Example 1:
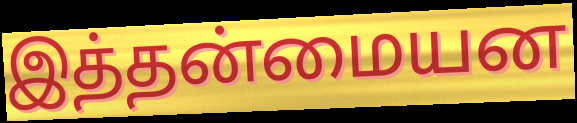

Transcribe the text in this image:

இத்தன்மையன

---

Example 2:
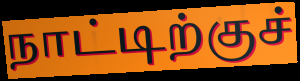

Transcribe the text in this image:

நாட்டிற்குச்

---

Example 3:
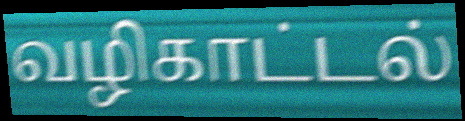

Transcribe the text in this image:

வழிகாட்டல்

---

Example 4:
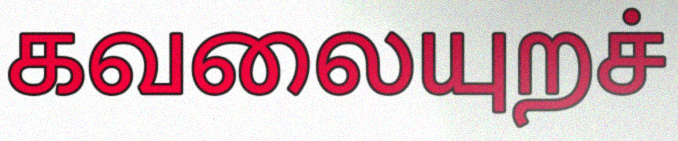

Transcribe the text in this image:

கவலையுறச்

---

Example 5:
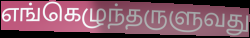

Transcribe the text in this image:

எங்கெழுந்தருளுவது